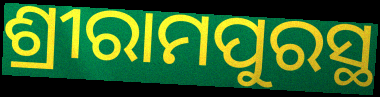
ଶ୍ରୀରାମପୁରସ୍ଥ